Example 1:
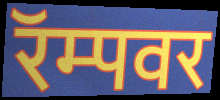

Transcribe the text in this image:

रॅम्पवर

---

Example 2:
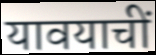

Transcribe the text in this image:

यावयाचीं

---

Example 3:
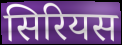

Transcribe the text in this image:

सिरियस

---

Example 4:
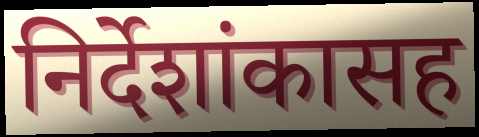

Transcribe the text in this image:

निर्देशांकासह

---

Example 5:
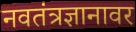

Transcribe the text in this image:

नवतंत्रज्ञानावर